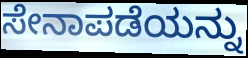
ಸೇನಾಪಡೆಯನ್ನು